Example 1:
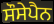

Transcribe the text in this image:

ਸੌਸੇਪੈਨ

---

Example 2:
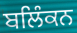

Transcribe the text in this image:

ਬਲਿੰਕਨ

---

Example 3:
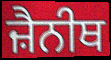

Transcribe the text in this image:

ਜ਼ੈਨੀਥ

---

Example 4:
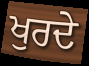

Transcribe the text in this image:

ਖੁਰਦੇ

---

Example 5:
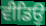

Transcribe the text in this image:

ਵੀਡਿਉ